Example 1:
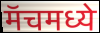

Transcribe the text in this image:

मॅचमध्ये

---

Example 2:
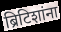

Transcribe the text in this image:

ब्रिटिशांना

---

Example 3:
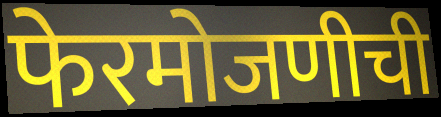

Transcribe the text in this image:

फेरमोजणीची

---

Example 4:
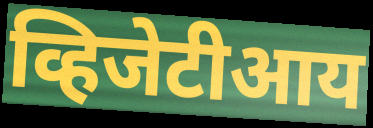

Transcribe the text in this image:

व्हिजेटीआय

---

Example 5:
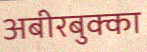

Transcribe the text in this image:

अबीरबुक्का